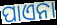
ପାଏନା